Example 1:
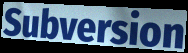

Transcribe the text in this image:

Subversion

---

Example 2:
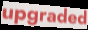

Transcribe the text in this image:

upgraded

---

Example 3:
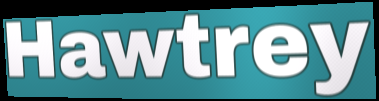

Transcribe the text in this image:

Hawtrey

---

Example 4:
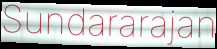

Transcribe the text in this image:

Sundararajan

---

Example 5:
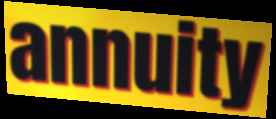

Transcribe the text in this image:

annuity